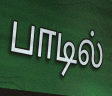
பாடில்